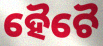
ହୈଚୈ